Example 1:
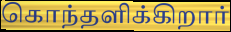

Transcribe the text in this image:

கொந்தளிக்கிறார்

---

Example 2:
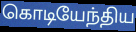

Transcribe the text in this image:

கொடியேந்திய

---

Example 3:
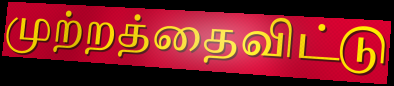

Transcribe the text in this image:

முற்றத்தைவிட்டு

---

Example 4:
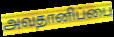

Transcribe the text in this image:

அவதானிப்பை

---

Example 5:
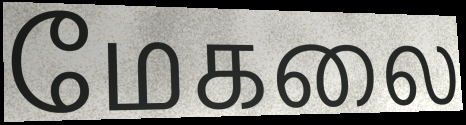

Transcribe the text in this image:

மேகலை